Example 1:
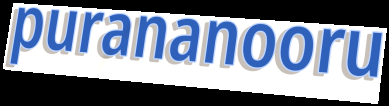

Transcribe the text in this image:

purananooru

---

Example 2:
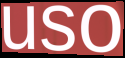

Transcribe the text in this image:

uso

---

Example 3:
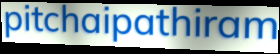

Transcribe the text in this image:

pitchaipathiram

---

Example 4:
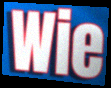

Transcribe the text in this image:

Wie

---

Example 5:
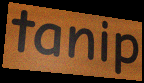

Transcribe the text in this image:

tanip